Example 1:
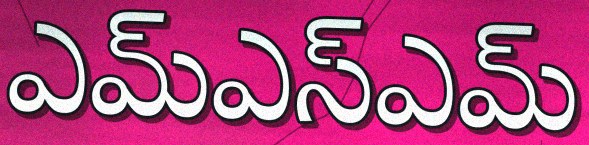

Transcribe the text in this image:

ఎమ్ఎస్ఎమ్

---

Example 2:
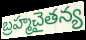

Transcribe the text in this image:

బ్రహ్మచైతన్య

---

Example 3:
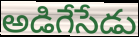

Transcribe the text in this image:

అడిగేసేడు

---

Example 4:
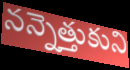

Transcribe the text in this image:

నన్నెత్తుకుని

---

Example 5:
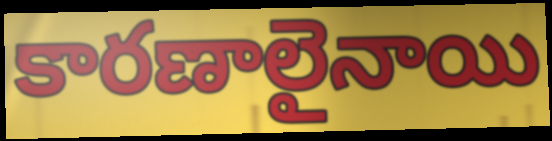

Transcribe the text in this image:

కారణాలైనాయి